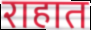
राहात